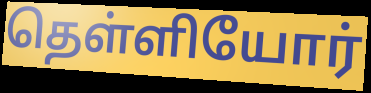
தெள்ளியோர்